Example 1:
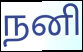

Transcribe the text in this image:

நனி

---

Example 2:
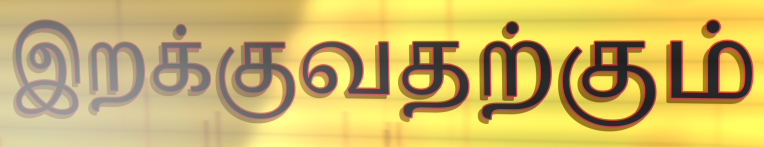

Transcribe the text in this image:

இறக்குவதற்கும்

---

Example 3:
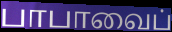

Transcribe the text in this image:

பாபாவைப்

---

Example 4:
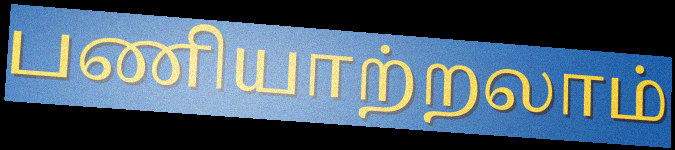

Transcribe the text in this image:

பணியாற்றலாம்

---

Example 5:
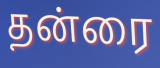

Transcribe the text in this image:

தன்ரை